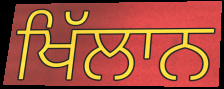
ਖਿੱਲਾਨ